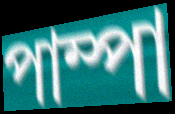
পাম্পা